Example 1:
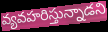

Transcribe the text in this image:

వ్యవహరిస్తున్నాడని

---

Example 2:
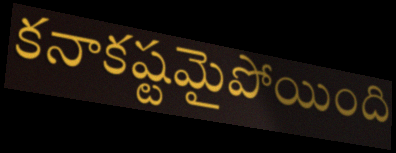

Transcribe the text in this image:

కనాకష్టమైపోయింది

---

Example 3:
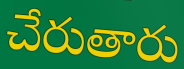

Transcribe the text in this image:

చేరుతారు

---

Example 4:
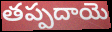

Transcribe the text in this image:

తప్పదాయె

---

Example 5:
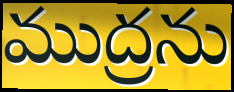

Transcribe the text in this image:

ముద్రను